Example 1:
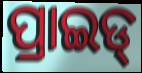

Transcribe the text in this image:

ପ୍ରାଇଡ୍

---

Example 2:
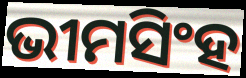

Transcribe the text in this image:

ଭୀମସିଂହ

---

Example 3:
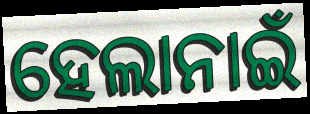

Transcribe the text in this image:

ହେଲାନାଇଁ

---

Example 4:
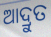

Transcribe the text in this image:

ଆଦ୍ରୁତ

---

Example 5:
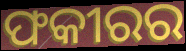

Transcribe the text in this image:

ଫକୀରର